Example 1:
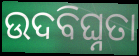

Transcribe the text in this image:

ଉଦବିଘ୍ନତା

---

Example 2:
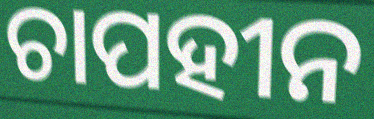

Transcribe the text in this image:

ଚାପହୀନ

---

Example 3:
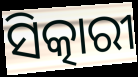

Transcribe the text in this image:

ସିତ୍କାରୀ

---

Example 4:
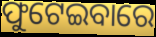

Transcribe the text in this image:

ଫୁଟେଇବାରେ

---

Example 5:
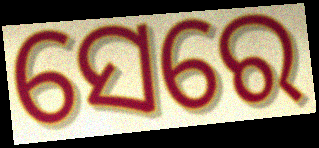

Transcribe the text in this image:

ସେରେ